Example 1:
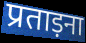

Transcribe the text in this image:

प्रताड़ना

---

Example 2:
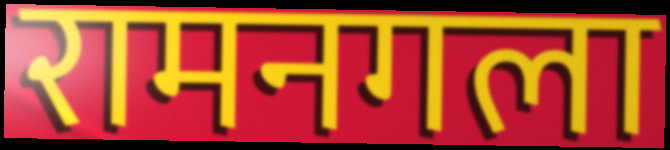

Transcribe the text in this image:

रामनगला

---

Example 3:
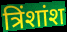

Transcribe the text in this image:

त्रिंशांश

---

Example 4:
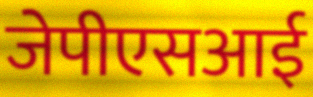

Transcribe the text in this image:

जेपीएसआई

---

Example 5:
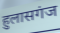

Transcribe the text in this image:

हुलासगंज